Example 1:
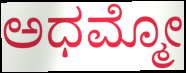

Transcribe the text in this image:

ಅಧಮ್ಮೋ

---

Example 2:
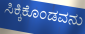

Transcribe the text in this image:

ಸಿಕ್ಕಿಕೊಂಡವನು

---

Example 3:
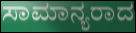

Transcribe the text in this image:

ಸಾಮಾನ್ಯರಾದ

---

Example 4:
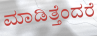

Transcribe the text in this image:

ಮಾಡಿತ್ತೆಂದರೆ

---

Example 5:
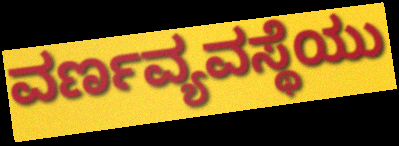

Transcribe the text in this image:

ವರ್ಣವ್ಯವಸ್ಥೆಯು